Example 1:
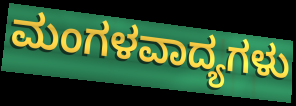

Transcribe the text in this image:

ಮಂಗಳವಾದ್ಯಗಳು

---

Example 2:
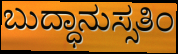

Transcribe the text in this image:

ಬುದ್ಧಾನುಸ್ಸತಿಂ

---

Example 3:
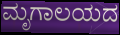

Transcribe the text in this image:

ಮೃಗಾಲಯದ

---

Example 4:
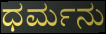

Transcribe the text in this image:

ಧರ್ಮನು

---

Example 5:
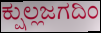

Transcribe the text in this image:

ಕ್ಷುಲ್ಲಜಗದಿಂ